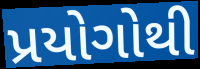
પ્રયોગોથી